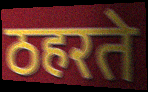
ठहरते